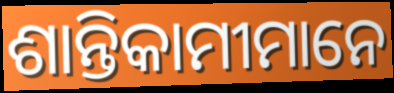
ଶାନ୍ତିକାମୀମାନେ